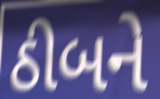
ઠીબને